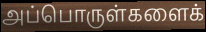
அப்பொருள்களைக்